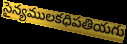
సైన్యములకధిపతియగు